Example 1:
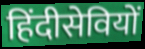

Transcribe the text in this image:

हिंदीसेवियों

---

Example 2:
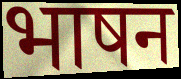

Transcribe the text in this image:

भाषन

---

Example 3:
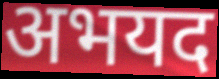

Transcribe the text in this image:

अभयद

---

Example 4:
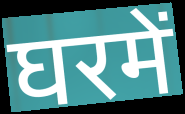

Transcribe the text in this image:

घरमें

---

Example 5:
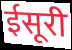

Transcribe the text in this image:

ईसूरी